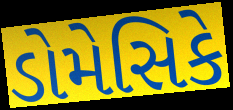
ડોમેસિકે